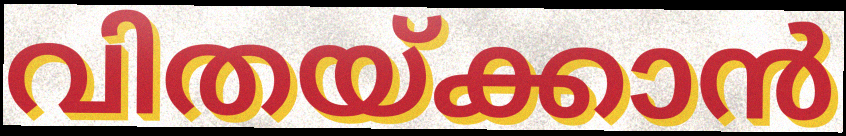
വിതയ്ക്കാൻ